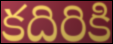
కదిరికి